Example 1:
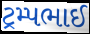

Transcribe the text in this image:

ટ્રમ્પભાઈ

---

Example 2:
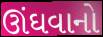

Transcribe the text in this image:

ઊંઘવાનો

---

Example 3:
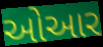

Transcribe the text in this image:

ઓઆર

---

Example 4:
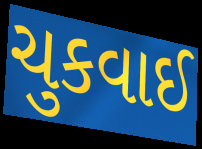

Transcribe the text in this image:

ચુકવાઈ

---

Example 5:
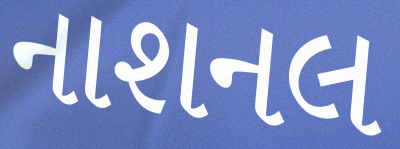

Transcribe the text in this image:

નાશનલ